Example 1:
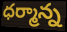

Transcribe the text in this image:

ధర్మాన్న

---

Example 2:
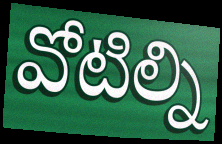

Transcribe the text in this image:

వోటిల్ని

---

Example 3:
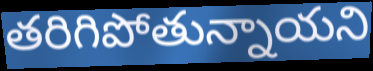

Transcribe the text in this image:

తరిగిపోతున్నాయని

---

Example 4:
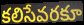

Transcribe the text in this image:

కలిసేవరకూ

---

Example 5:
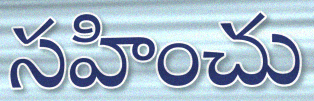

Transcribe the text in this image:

సహించు